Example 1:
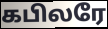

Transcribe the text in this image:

கபிலரே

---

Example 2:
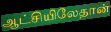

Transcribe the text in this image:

ஆட்சியிலேதான்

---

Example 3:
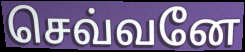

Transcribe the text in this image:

செவ்வனே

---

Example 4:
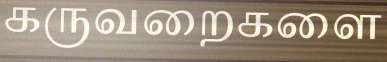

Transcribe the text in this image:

கருவறைகளை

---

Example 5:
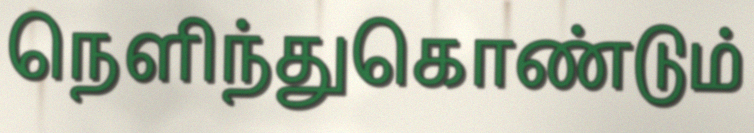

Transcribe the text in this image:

நெளிந்துகொண்டும்